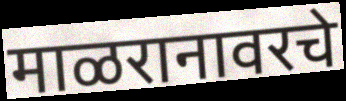
माळरानावरचे